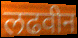
लढवीन